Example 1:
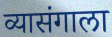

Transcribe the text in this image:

व्यासंगाला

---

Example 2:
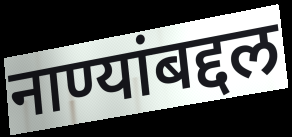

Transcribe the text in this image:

नाण्यांबद्दल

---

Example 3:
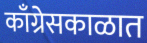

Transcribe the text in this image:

काँग्रेसकाळात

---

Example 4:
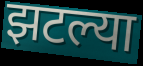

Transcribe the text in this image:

झटल्या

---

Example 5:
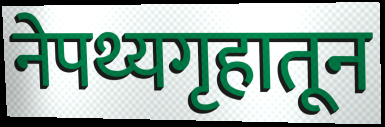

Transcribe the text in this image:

नेपथ्यगृहातून